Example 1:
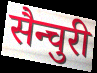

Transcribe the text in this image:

सैन्चुरी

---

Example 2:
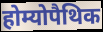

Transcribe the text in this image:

होम्योपैथिक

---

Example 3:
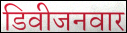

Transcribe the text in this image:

डिवीजनवार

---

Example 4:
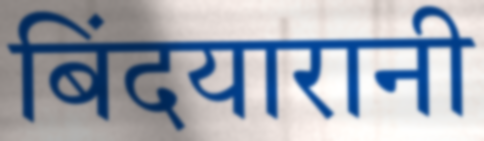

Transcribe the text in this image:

बिंदयारानी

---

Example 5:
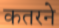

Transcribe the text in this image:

कतरने